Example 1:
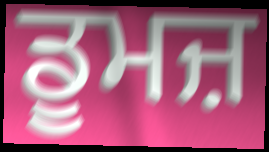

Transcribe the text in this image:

ਡੂਮਜ਼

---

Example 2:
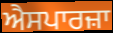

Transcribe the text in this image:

ਐਸਪਾਰਜ਼ਾ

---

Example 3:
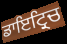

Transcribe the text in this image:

ਡਾਇਟ੍ਰਿਚ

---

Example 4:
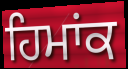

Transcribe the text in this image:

ਹਿਮਾਂਕ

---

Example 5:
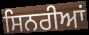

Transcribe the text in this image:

ਸਿਨਰੀਆਂ